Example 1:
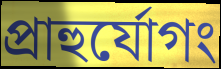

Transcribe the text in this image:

প্রাহুর্যোগং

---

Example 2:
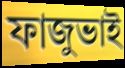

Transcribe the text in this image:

ফাজুভাই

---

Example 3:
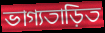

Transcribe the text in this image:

ভাগ্যতাড়িত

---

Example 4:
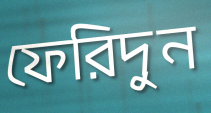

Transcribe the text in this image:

ফেরিদুন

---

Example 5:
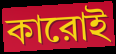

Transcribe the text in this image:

কারোই